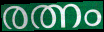
രത്നം